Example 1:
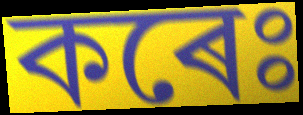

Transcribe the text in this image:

কৰেঃ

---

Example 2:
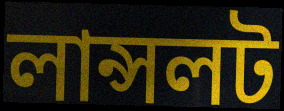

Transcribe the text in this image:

লান্সলট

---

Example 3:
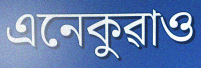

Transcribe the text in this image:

এনেকুৱাও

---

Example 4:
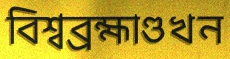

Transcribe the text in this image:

বিশ্বব্ৰহ্মাণ্ডখন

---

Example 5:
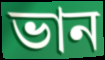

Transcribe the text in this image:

ভান